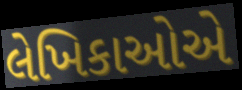
લેખિકાઓએ